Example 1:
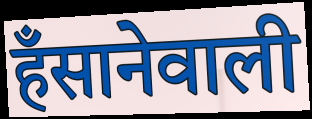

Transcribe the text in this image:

हँसानेवाली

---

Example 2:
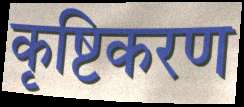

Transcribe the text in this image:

कृष्टिकरण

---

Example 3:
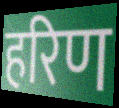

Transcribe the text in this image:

हरिण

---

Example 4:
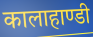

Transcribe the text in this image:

कालाहाण्डी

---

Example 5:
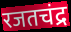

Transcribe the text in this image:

रजतचंद्र